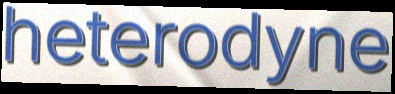
heterodyne